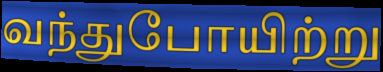
வந்துபோயிற்று